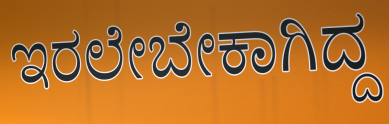
ಇರಲೇಬೇಕಾಗಿದ್ದ